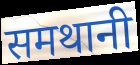
समथानी